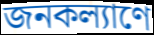
জনকল্যাণে